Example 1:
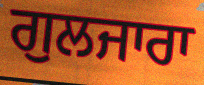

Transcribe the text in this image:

ਗੁਲਜਾਰਾ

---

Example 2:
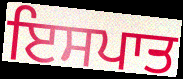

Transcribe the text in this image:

ਇਸਪਾਤ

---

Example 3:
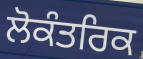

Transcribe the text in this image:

ਲੋਕੰਤਰਿਕ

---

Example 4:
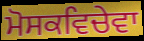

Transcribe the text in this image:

ਮੋਸਕਵਿਚੇਵਾ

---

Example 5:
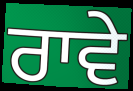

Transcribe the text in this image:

ਰਾਵੇ